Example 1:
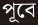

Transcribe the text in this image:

পূবে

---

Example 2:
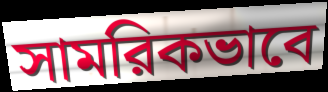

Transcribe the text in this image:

সামরিকভাবে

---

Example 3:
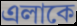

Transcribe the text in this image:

এলাকে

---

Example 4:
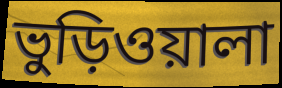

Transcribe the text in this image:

ভুড়িওয়ালা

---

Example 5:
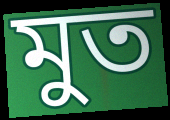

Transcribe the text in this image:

মুত